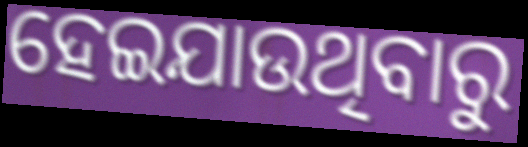
ହେଇଯାଉଥିବାରୁ